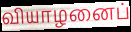
வியாழனைப்